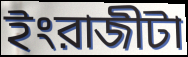
ইংরাজীটা